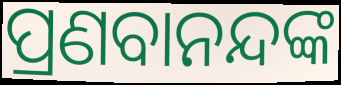
ପ୍ରଣବାନନ୍ଦଙ୍କ